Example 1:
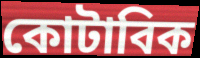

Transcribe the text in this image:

কোটাবিক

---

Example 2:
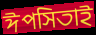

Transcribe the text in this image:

ঈপসিতাই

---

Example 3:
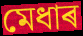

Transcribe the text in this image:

মেধাৰ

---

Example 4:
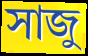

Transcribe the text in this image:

সাজু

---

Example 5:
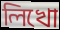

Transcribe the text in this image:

লিখো